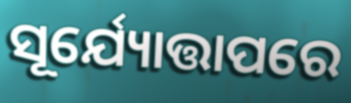
ସୂର୍ଯ୍ୟୋତ୍ତାପରେ